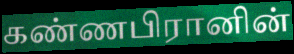
கண்ணபிரானின்